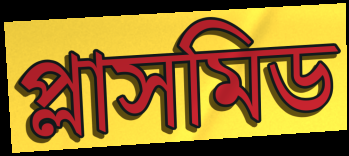
প্লাসমিড